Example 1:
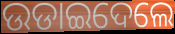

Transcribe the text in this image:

ଉଡାଇଦେଲେ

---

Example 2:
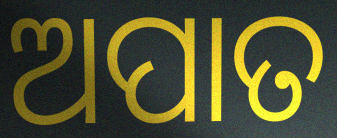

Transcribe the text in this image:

ଅପାତ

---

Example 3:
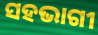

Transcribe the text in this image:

ସହଭାଗୀ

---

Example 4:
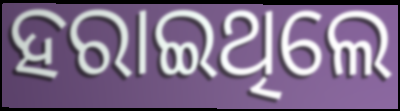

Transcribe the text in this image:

ହରାଇଥିଲେ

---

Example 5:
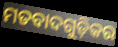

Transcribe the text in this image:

ମତବାଦଗୁଡ଼ିକର